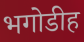
भगोडीह